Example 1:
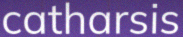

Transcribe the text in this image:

catharsis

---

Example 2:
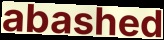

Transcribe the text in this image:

abashed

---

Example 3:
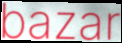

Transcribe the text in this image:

bazar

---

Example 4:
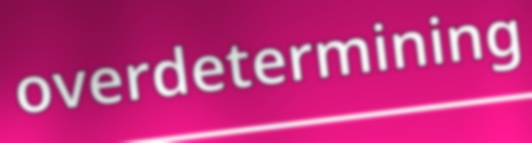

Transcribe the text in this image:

overdetermining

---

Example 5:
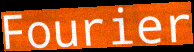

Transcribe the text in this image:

Fourier